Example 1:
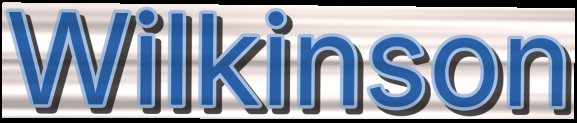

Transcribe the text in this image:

Wilkinson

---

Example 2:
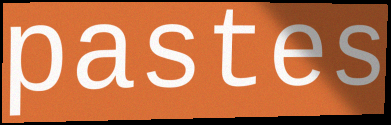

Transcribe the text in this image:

pastes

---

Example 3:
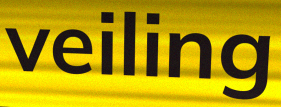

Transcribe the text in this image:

veiling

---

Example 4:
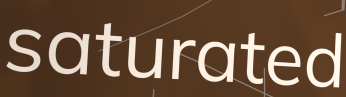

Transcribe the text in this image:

saturated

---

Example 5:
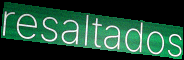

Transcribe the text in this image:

resaltados